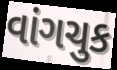
વાંગચુક